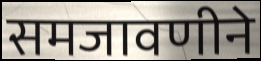
समजावणीने